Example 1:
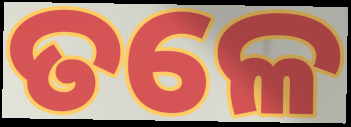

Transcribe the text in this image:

ତଳେ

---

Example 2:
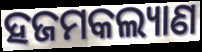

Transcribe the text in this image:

ହଜମକଲ୍ୟାଣ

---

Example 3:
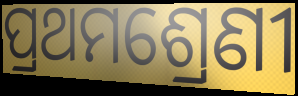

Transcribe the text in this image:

ପ୍ରଥମଶ୍ରେଣୀ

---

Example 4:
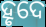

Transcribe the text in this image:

ହୃଦେ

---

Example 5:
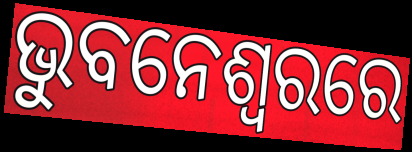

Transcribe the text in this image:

ଭୁବନେଶ୍ଵରରେ